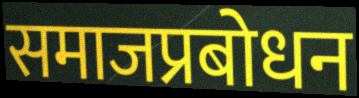
समाजप्रबोधन